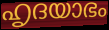
ഹൃദയാഭം